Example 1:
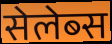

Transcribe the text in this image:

सेलेब्‍स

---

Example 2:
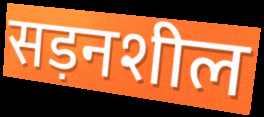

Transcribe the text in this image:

सड़नशील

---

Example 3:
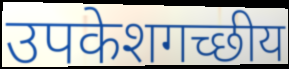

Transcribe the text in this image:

उपकेशगच्छीय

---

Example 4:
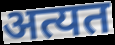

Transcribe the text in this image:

अत्यत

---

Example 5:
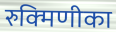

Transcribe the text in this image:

रुक्मिणीका